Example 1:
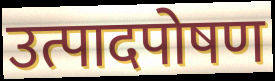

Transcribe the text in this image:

उत्पादपोषण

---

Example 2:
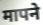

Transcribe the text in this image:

मापने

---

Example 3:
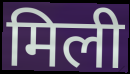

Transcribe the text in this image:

मिली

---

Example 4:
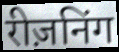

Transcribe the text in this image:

रीज़निंग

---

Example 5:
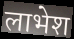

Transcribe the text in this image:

लाभेश